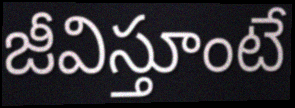
జీవిస్తూంటే